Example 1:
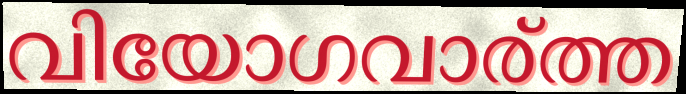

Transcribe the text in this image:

വിയോഗവാര്ത്ത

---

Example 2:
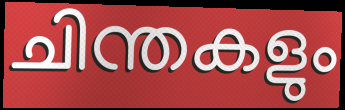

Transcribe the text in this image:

ചിന്തകളും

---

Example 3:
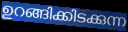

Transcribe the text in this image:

ഉറങ്ങിക്കിടക്കുന്ന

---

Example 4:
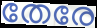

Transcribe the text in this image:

തേരേ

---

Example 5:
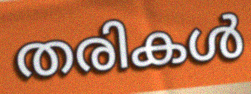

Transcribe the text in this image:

തരികൾ